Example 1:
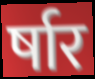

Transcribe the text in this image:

र्षार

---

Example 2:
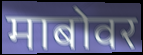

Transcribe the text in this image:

माबोवर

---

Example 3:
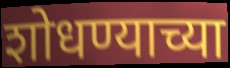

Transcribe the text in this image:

शोधण्याच्या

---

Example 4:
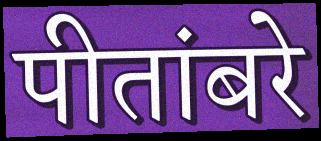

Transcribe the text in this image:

पीतांबरे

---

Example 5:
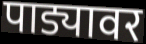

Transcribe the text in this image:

पाड्यावर